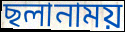
ছলানাময়